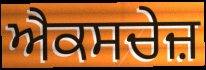
ਐਕਸਚੇਜ਼